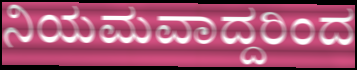
ನಿಯಮವಾದ್ದರಿಂದ